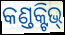
କଣ୍ଡକ୍ଟିଭ୍